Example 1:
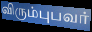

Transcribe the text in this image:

விரும்புபவர்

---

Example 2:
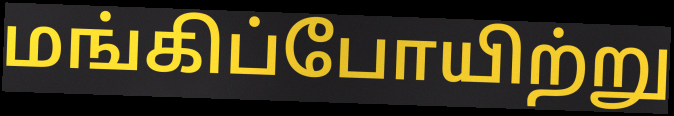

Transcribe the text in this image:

மங்கிப்போயிற்று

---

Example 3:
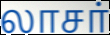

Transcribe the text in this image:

லாசர்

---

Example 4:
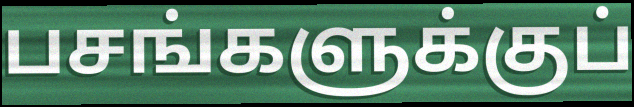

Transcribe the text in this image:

பசங்களுக்குப்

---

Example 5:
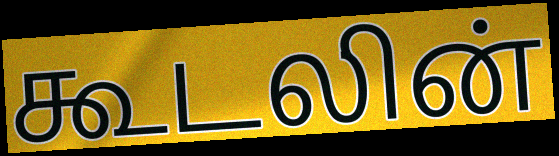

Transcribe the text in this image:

கூடலின்